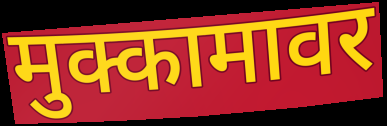
मुक्कामावर